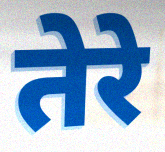
तेरे